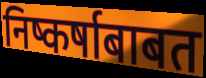
निष्कर्षाबाबत